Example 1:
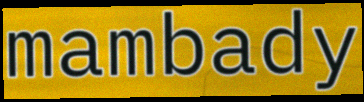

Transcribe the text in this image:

mambady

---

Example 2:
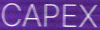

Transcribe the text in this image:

CAPEX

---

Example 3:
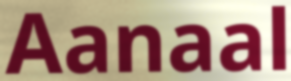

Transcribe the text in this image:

Aanaal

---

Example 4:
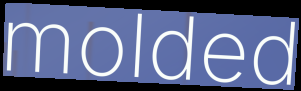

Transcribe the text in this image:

molded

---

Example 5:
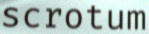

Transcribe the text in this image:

scrotum